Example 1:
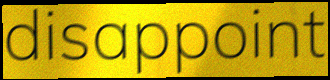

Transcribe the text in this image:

disappoint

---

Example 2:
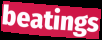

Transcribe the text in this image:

beatings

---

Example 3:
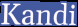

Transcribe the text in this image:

Kandi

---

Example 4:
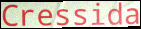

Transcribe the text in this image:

Cressida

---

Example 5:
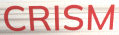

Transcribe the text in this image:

CRISM